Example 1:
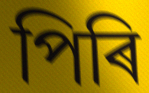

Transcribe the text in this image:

পিৰি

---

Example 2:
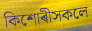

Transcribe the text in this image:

কিশোৰীসকলে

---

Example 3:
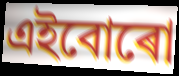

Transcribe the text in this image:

এইবোৰো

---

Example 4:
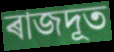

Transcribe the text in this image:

ৰাজদূত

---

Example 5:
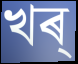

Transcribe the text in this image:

খৰ্